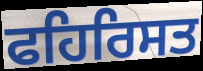
ਫਹਿਰਿਸਤ